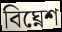
বিঘ্নেশ